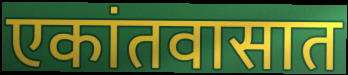
एकांतवासात